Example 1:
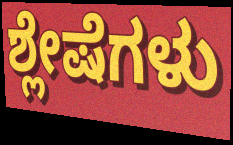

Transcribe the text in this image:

ಶ್ಲೇಷೆಗಳು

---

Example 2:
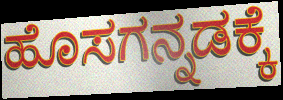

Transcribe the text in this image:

ಹೊಸಗನ್ನಡಕ್ಕೆ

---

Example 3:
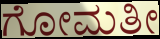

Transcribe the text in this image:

ಗೋಮತೀ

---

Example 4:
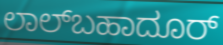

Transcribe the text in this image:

ಲಾಲ್‌ಬಹಾದೂರ್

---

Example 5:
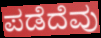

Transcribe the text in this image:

ಪಡೆದೆವು